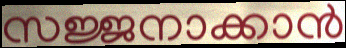
സജ്ജനാക്കാൻ